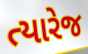
ત્યારેજ